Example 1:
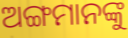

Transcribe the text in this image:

ଅଙ୍ଗମାନଙ୍କୁ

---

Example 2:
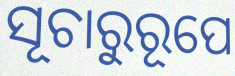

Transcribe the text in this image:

ସୂଚାରୁରୂପେ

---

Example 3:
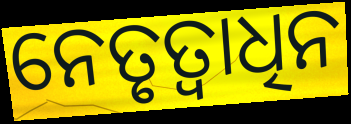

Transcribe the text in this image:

ନେତୃତ୍ୱାଧିନ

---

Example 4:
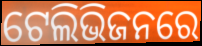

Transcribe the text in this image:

ଟେଲିଭିଜନରେ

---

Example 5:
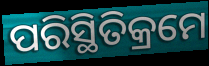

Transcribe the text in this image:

ପରିସ୍ଥିତିକ୍ରମେ